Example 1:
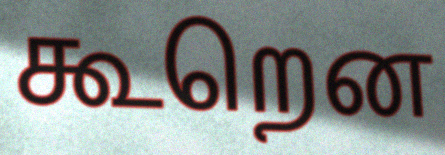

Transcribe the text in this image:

கூறென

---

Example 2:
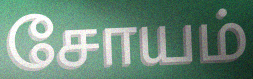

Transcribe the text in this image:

சோயம்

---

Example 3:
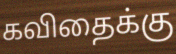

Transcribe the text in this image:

கவிதைக்கு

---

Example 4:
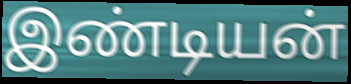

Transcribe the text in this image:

இண்டியன்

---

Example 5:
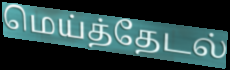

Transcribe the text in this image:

மெய்த்தேடல்